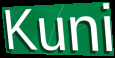
Kuni